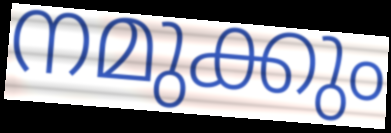
നമുക്കും